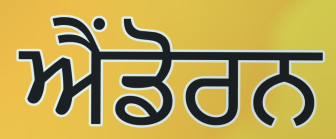
ਐਂਡੋਰਨ